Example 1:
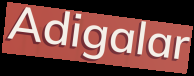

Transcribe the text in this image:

Adigalar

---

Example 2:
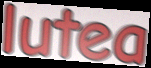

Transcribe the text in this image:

lutea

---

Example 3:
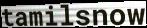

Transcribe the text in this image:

tamilsnow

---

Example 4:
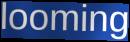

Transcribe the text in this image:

looming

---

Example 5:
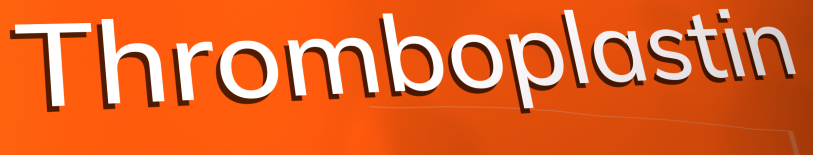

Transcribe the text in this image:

Thromboplastin